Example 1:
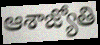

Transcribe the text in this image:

ఆశాజ్యోతి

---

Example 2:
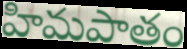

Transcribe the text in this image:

హిమపాతం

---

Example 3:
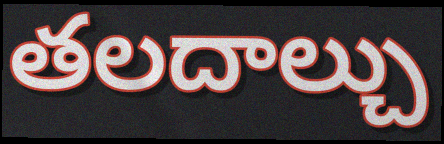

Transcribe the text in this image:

తలదాల్చు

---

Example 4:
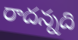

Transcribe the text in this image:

రాదన్నది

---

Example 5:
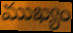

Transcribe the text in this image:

ముఖ్యం